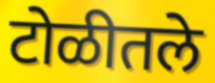
टोळीतले